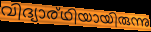
വിദ്യാര്ഥിയായിരുന്നു